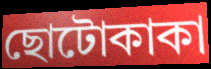
ছোটোকাকা